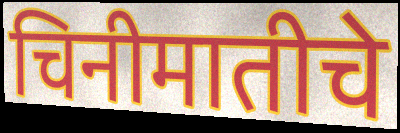
चिनीमातीचे